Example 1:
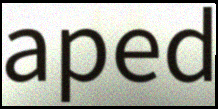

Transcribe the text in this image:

aped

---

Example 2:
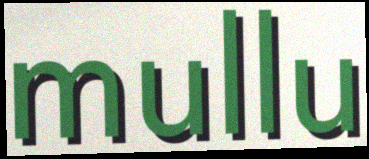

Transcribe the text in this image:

mullu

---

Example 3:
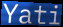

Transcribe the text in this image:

Yati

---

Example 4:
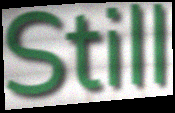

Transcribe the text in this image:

Still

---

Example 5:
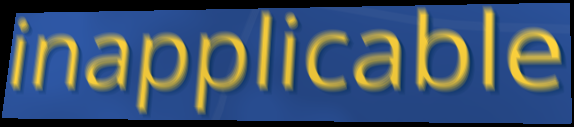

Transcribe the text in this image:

inapplicable